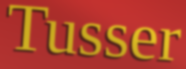
Tusser